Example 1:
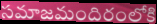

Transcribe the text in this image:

సమాజమందిరంలోకి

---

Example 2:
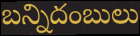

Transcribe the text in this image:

బన్నిదంబులు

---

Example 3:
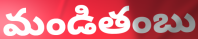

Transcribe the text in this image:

మండితంబు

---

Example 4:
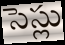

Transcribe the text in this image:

సెస్లు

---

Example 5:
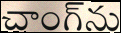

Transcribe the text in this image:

చాంగ్‌ను